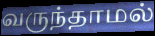
வருந்தாமல்